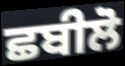
ਛਬੀਲੋ